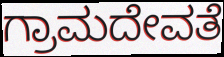
ಗ್ರಾಮದೇವತೆ